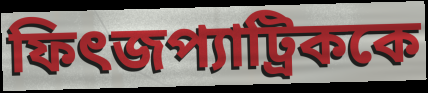
ফিৎজপ্যাট্রিককে